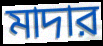
মাদার